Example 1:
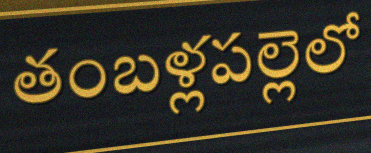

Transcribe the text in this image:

తంబళ్లపల్లెలో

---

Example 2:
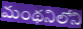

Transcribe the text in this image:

మంథనిలోని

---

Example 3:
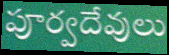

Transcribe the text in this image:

పూర్వదేవులు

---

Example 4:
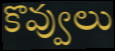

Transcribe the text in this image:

కొవ్వులు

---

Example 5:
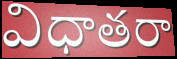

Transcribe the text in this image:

విధాతరా